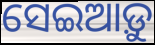
ସେଇଆଡ଼ୁ